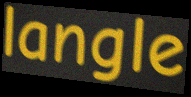
langle